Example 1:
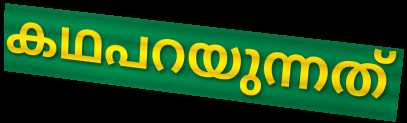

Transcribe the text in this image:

കഥപറയുന്നത്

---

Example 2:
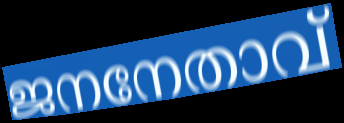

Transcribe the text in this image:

ജനനേതാവ്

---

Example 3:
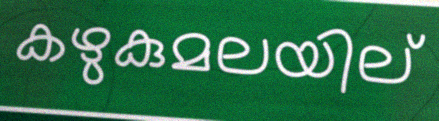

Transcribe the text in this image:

കഴുകുമലയില്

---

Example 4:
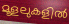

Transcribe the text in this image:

മൂളലുകളിൽ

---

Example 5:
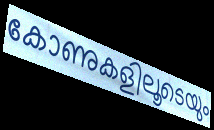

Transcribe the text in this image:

കോണുകളിലൂടെയും